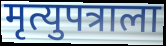
मृत्युपत्राला